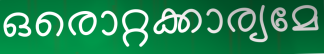
ഒരൊറ്റക്കാര്യമേ